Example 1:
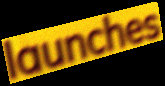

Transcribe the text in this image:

launches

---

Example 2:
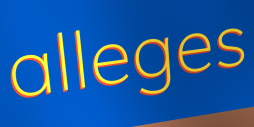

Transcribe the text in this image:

alleges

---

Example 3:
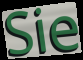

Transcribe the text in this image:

Sie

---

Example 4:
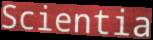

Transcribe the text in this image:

Scientia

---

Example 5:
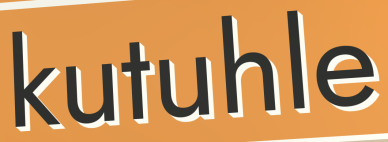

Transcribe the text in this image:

kutuhle